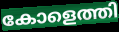
കോളെത്തി